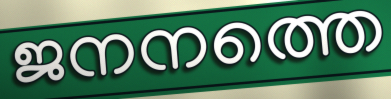
ജനനത്തെ